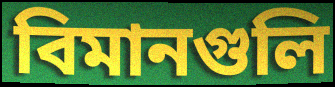
বিমানগুলি